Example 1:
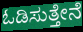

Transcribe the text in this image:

ಓಡಿಸುತ್ತೇನೆ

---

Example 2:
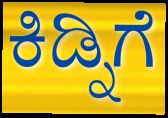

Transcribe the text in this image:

ಕಿಡ್ನಿಗೆ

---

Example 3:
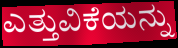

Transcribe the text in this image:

ಎತ್ತುವಿಕೆಯನ್ನು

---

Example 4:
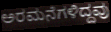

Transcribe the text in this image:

ಅರಮನೆಗಳಿದ್ದವು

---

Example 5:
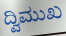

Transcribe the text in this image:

ದ್ವಿಮುಖ